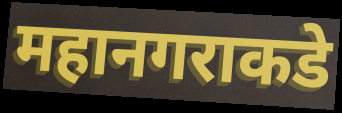
महानगराकडे